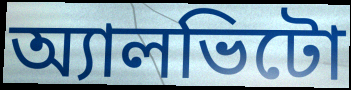
অ্যালভিটো